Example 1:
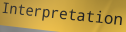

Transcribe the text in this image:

Interpretation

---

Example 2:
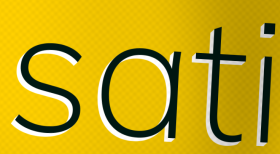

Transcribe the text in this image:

sati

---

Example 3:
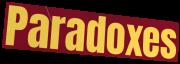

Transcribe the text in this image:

Paradoxes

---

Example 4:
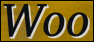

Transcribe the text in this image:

Woo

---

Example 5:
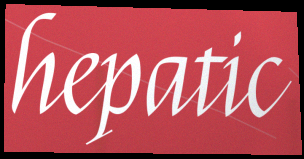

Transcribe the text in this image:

hepatic